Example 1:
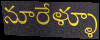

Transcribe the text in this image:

నూరేళ్ళూ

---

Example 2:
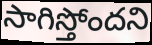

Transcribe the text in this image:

సాగిస్తోందని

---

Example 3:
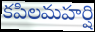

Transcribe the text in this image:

కపిలమహర్షి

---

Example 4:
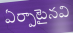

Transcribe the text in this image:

ఏర్పాటైనవి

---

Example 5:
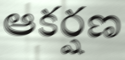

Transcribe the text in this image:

ఆకర్షణ